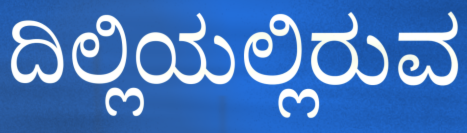
ದಿಲ್ಲಿಯಲ್ಲಿರುವ